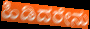
ಹಿಡಿದರೇನು